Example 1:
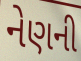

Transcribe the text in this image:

નેણની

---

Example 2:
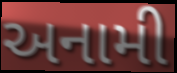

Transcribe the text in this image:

અનામી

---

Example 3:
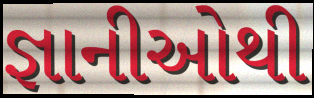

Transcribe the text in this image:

જ્ઞાનીઓથી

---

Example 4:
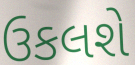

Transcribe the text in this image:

ઉકલશે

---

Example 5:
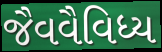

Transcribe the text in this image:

જૈવવૈવિધ્ય